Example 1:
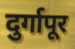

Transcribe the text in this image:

दुर्गापूर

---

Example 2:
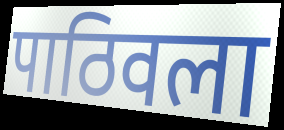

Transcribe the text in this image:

पाठिवला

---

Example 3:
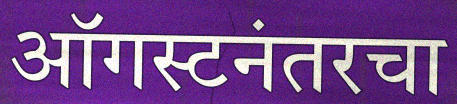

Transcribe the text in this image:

ऑगस्टनंतरचा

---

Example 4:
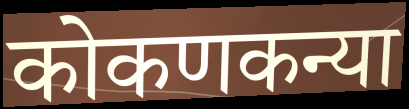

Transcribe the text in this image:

कोकणकन्या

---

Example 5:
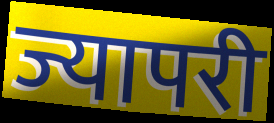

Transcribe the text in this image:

ज्यापरी